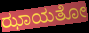
ಝಾಯತೋ